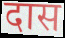
दास